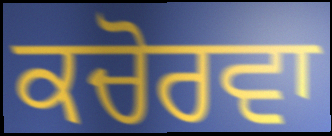
ਕਚੋਰਵਾ